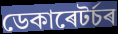
ডেকাৰেটৰ্চৰ